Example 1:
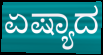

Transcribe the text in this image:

ಏಷ್ಯಾದ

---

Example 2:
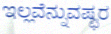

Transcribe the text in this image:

ಇಲ್ಲವೆನ್ನುವಷ್ಟರ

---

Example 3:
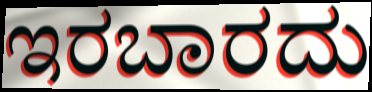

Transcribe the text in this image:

ಇರಬಾರದು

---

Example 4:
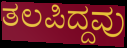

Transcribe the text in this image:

ತಲಪಿದ್ದವು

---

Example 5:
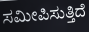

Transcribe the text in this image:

ಸಮೀಪಿಸುತ್ತಿದೆ